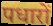
पधारों